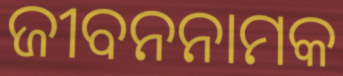
ଜୀବନନାମକ